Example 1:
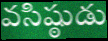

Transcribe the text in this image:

వసిష్ఠుడు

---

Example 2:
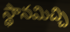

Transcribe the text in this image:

స్థానమిచ్చి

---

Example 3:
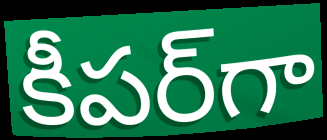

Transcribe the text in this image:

కీపర్‌గా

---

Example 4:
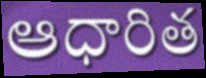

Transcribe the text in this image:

ఆధారిత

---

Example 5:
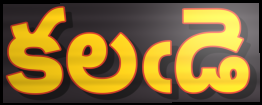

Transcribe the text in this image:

కలఁడె